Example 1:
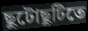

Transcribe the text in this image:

ছুটোছুটিতে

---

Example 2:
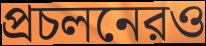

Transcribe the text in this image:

প্রচলনেরও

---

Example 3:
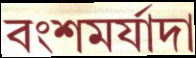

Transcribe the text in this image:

বংশমর্যাদা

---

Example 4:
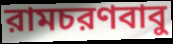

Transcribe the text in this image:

রামচরণবাবু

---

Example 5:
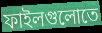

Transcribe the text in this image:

ফাইলগুলোতে